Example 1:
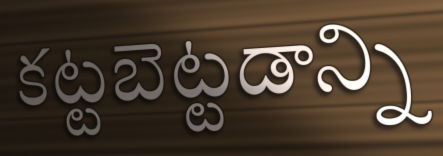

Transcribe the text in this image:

కట్టబెట్టడాన్ని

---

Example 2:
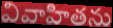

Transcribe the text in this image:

వివాహితను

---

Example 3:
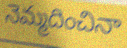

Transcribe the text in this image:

నెమ్మదించినా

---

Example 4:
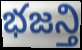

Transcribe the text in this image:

భజన్తి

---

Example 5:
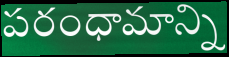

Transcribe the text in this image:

పరంధామాన్ని